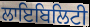
ਲਾਇਬਿਲਿਟੀ